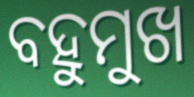
ବହୁମୁଖ